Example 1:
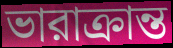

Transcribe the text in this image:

ভারাক্রান্ত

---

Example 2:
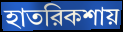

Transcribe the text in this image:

হাতরিকশায়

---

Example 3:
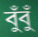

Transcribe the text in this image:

বুঁবুঁ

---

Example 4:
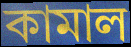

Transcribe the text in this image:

কামাল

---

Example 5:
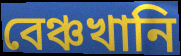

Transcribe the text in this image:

বেঞ্চখানি